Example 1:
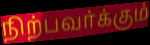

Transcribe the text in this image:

நிற்பவர்க்கும்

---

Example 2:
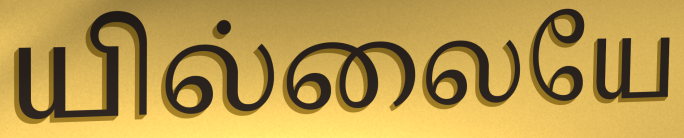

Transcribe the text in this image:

யில்லையே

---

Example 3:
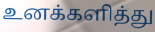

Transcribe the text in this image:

உனக்களித்து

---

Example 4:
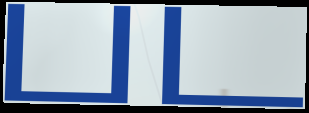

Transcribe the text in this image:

பட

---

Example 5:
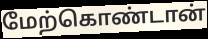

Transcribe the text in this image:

மேற்கொண்டான்